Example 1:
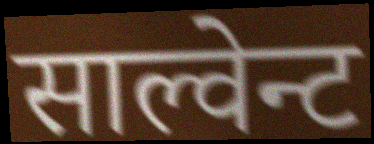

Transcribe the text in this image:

साल्वेन्ट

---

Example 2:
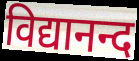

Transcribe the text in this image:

विद्यानन्द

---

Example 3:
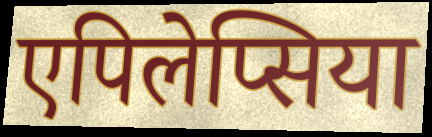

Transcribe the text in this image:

एपिलेप्सिया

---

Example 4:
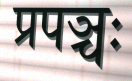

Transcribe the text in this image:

प्रपञ्चः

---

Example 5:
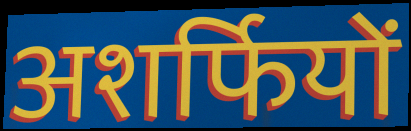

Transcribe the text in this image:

अशर्फियों